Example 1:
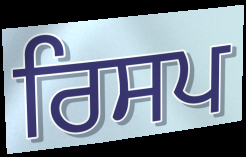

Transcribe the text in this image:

ਰਿਸਪ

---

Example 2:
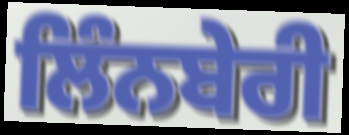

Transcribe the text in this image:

ਲਿੰਨਬੇਰੀ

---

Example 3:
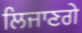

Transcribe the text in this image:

ਲਿਜਾਣਗੇ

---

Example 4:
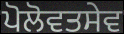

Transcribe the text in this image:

ਪੋਲੋਵਤਸੇਵ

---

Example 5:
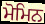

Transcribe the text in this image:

ਮੋਮਿਨ